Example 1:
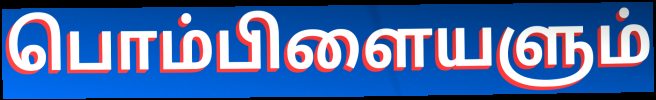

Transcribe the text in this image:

பொம்பிளையளும்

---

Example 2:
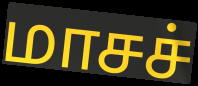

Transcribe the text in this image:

மாசச்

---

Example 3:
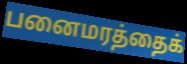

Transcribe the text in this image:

பனைமரத்தைக்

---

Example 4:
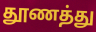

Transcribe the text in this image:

தூணத்து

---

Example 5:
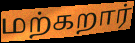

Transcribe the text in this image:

மற்கறார்